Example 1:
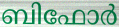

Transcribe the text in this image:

ബിഫോർ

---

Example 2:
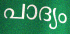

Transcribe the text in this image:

പാദ്യം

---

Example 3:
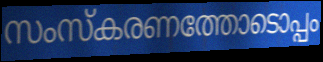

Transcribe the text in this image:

സംസ്കരണത്തോടൊപ്പം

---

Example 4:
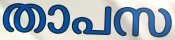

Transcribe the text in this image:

താപസ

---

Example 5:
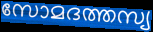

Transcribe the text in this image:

സോമദത്തസ്യ